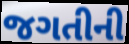
જગતીની